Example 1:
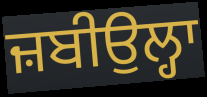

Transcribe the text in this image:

ਜ਼ਬੀਉਲ੍ਹਾ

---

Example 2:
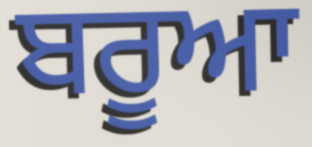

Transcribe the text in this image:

ਬਰੂਆ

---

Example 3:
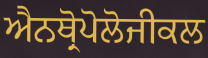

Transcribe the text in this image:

ਐਨਥ੍ਰੋਪੋਲੋਜੀਕਲ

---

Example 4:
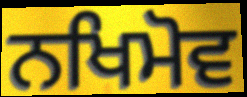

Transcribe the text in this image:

ਨਖਿਮੋਵ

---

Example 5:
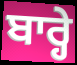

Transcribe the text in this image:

ਬਾਰ੍ਹੇ